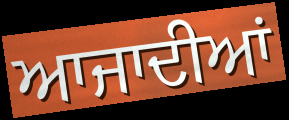
ਆਜਾਦੀਆਂ